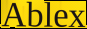
Ablex